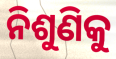
ନିଶୁଣିକୁ